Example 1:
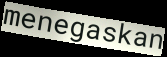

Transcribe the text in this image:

menegaskan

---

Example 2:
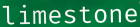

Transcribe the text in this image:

limestone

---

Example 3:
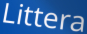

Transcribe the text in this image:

Littera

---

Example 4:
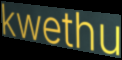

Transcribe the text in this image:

kwethu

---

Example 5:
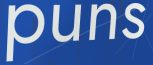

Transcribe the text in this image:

puns